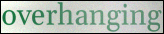
overhanging